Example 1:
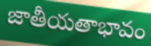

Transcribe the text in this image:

జాతీయతాభావం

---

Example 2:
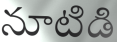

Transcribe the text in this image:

నూటిడి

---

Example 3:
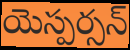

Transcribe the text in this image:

యెస్పర్సన్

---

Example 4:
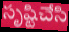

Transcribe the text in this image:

సృష్టిచేసి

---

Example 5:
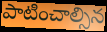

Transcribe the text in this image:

పాటించాల్సిన